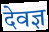
देवज्ञ